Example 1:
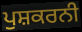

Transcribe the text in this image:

ਪੁਸ਼ਕਰਨੀ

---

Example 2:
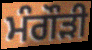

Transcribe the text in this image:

ਮੰਗੌੜੀ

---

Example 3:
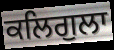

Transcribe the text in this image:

ਕਲਿਗੁਲਾ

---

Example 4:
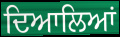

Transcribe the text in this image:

ਦਿਆਲਿਆਂ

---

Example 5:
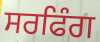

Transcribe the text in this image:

ਸਰਫਿੰਗ